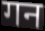
गन